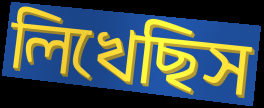
লিখেছিস